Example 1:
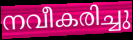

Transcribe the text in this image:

നവീകരിച്ചു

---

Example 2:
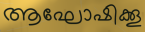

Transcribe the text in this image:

ആഘോഷിക്കൂ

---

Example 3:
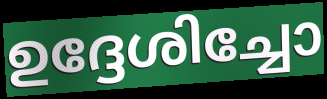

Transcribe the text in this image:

ഉദ്ദേശിച്ചോ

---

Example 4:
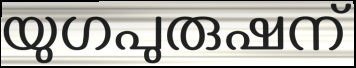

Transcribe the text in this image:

യുഗപുരുഷന്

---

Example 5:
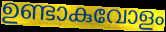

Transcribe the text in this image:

ഉണ്ടാകുവോളം